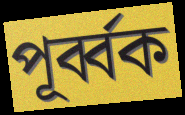
পূর্ব্বক